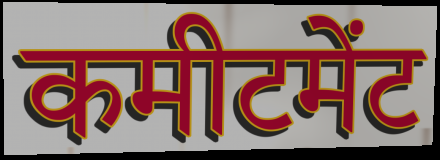
कमीटमेंट